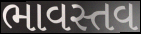
ભાવસ્તવ